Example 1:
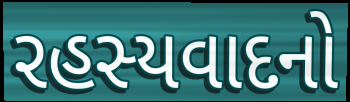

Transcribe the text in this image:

રહસ્યવાદનો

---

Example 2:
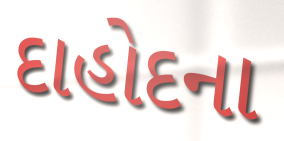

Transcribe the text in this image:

દાહોદના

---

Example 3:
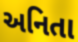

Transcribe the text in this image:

અનિતા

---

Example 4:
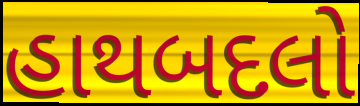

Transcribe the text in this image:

હાથબદલો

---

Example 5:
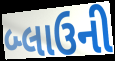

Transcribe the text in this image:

બ્લાઉની